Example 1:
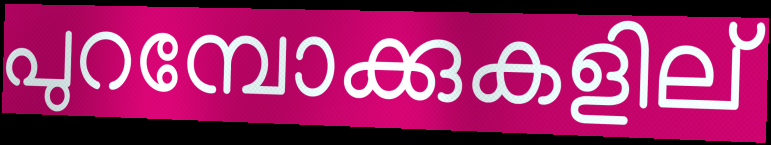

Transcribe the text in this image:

പുറമ്പോക്കുകളില്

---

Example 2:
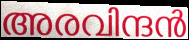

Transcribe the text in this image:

അരവിന്ദൻ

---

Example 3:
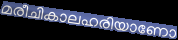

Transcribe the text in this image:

മരീചികാലഹരിയാണോ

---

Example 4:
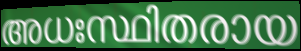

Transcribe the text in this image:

അധഃസ്ഥിതരായ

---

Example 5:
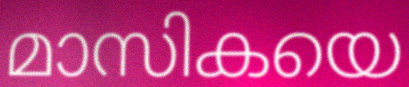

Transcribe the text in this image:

മാസികയെ